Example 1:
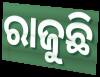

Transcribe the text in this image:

ରାଜୁଛି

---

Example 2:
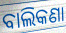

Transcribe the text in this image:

ବାଲିକଣା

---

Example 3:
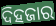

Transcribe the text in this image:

ଦିହଜାର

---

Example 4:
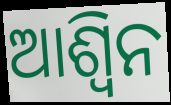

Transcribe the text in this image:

ଆଶ୍ୱିନ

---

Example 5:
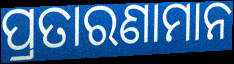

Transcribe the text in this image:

ପ୍ରତାରଣାମାନ